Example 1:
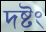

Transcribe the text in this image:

দষ্টং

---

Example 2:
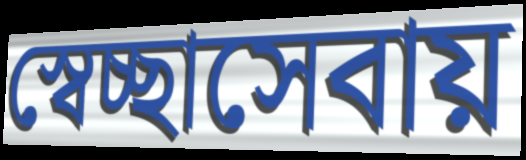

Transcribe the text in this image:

স্বেচ্ছাসেবায়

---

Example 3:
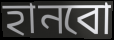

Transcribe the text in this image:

হানবো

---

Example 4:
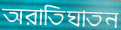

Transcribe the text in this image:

অরাতিঘাতন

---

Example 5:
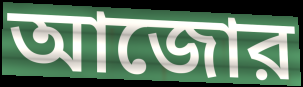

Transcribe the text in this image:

আজোর